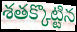
శతక్కొట్టిన